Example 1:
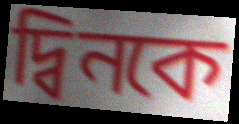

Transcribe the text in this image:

দ্বিনকে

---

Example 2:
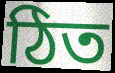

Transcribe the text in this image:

ঠিত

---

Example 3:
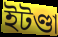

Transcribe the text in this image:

ইটণ্ডা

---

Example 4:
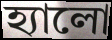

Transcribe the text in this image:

হ্যালো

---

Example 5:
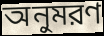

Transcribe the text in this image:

অনুমরণ